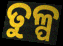
ତୁଳ୍ପ